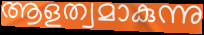
ആളത്വമാകുന്നു